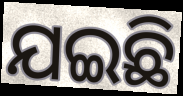
ଯଇଛି